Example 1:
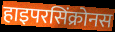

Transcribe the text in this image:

हाइपरसिंक्रोनस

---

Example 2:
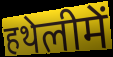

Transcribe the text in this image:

हथेलीमें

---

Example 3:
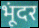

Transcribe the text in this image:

भूंदर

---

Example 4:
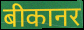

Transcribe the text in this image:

बीकानर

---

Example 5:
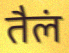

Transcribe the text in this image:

तैलं